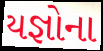
યજ્ઞોના